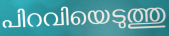
പിറവിയെടുത്തു